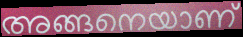
അങ്ങനെയാണ്